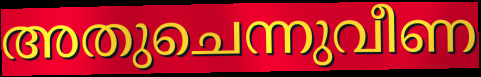
അതുചെന്നുവീണ